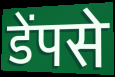
डेंपसे